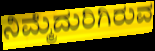
ನಿಮ್ಮೆದುರಿಗಿರುವ